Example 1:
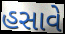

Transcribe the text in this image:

હસાવે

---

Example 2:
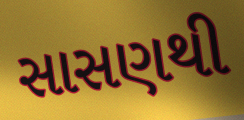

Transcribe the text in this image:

સાસણથી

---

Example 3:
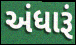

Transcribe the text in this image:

અંધારૂં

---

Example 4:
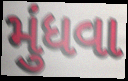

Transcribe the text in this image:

મુંધવા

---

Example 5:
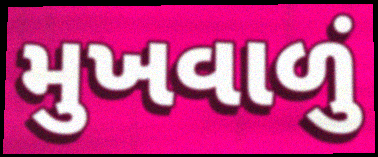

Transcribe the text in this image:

મુખવાળું